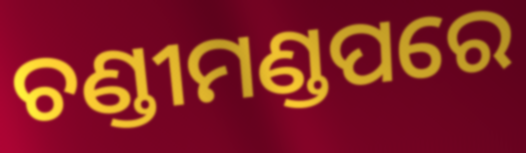
ଚଣ୍ଡୀମଣ୍ଡପରେ